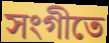
সংগীতে